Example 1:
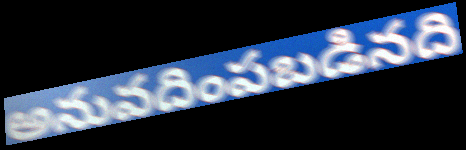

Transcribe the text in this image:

అనువదింపబడినది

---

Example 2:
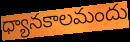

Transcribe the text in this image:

ధ్యానకాలమందు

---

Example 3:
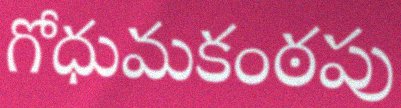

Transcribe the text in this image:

గోధుమకంఠపు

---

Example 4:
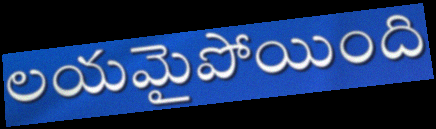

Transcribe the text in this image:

లయమైపోయింది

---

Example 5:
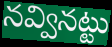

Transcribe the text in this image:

నవ్వినట్టు